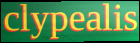
clypealis